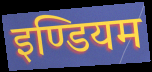
इण्डियम